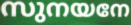
സുനയനേ